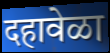
दहावेळा